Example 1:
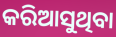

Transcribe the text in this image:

କରିଆସୁଥିବା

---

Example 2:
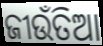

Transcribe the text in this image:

ଜୀଉଁତିଆ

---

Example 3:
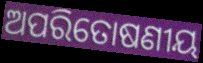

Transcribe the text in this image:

ଅପରିତୋଷଣୀୟ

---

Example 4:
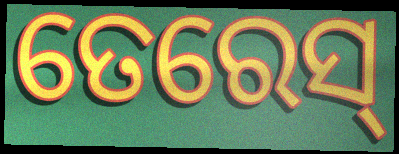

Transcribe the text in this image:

ତେରେସ୍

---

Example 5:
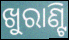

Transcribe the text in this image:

ଖୁରାଣ୍ଟି